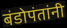
बंडोपंतांनी